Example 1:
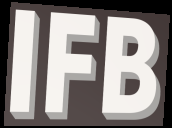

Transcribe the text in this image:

IFB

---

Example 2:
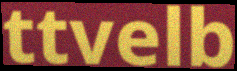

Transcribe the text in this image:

ttvelb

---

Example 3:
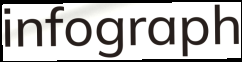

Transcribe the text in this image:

infograph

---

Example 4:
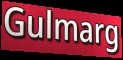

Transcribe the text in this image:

Gulmarg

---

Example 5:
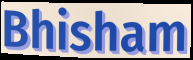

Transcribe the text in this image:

Bhisham